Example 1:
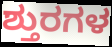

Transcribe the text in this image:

ಶ್ತುರಗಳ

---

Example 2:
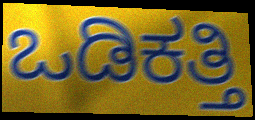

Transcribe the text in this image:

ಒಡಿಕತ್ತಿ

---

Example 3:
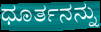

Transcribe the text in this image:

ಧೂರ್ತನನ್ನು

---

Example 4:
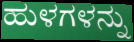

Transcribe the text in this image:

ಹುಳಗಳನ್ನು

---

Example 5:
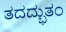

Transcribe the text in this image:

ತದದ್ಭುತಂ